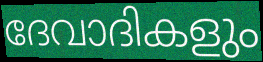
ദേവാദികളും